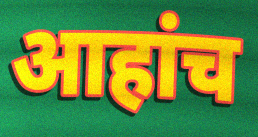
आहांच